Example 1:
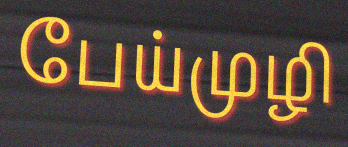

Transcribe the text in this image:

பேய்முழி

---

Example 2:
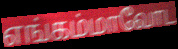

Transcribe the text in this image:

எங்கம்மாவோட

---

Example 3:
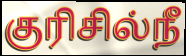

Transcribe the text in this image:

குரிசில்நீ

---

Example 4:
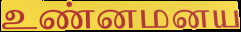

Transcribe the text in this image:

உண்னமனய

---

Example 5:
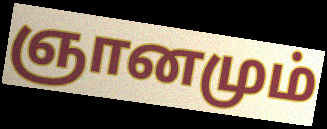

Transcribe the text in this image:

ஞானமும்